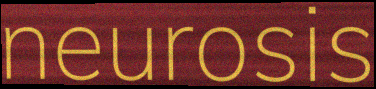
neurosis